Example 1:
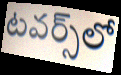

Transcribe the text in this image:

టవర్స్‌లో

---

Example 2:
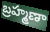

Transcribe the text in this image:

బ్రహ్మణా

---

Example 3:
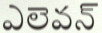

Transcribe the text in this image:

ఎలెవన్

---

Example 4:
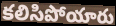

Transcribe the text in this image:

కలిసిపోయారు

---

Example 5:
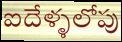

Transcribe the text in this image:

ఐదేళ్ళలోపు